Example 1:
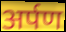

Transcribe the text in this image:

अर्पण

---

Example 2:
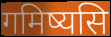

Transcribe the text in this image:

गमिष्यसि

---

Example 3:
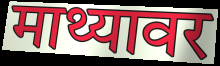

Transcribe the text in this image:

माथ्यावर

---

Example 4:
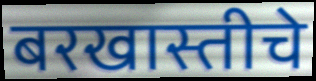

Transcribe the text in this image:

बरखास्तीचे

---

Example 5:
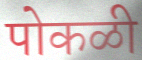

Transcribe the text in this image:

पोकळी